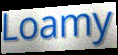
Loamy